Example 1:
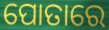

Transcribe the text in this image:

ପୋତାରେ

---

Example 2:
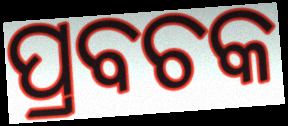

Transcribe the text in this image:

ପ୍ରବଚକ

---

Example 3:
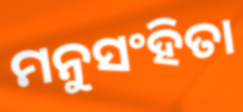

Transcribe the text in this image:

ମନୁସଂହିତା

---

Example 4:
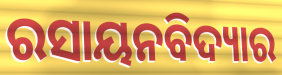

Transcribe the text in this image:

ରସାୟନବିଦ୍ୟାର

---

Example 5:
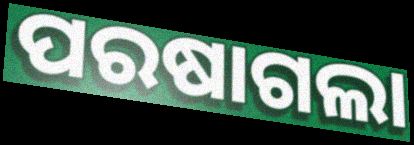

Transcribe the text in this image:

ପରଷାଗଲା